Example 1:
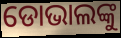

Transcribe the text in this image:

ଡୋଭାଲଙ୍କୁ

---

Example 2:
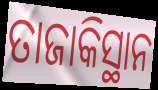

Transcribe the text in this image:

ତାଜାକିସ୍ଥାନ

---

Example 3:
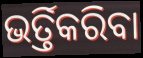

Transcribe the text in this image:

ଭର୍ତ୍ତିକରିବା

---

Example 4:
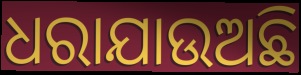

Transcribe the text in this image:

ଧରାଯାଉଅଛି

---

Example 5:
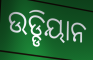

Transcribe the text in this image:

ଉଡ୍ଡିୟାନ